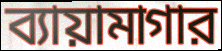
ব্যায়ামাগার